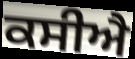
ਕਸੀਐ